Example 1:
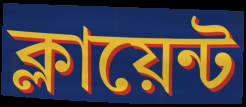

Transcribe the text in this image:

ক্লায়েন্ট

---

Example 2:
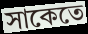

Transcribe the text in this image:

সাকেতে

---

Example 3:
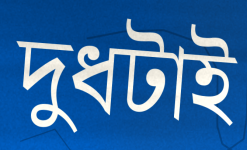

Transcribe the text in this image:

দুধটাই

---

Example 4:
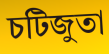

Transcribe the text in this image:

চটিজুতা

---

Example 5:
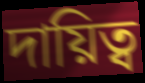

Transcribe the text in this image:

দায়িত্ব